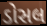
ડોસલ